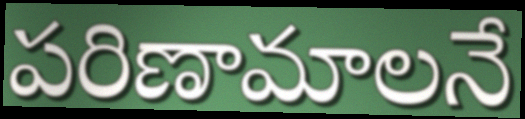
పరిణామాలనే